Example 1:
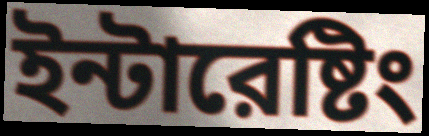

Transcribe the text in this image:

ইন্টারেষ্টিং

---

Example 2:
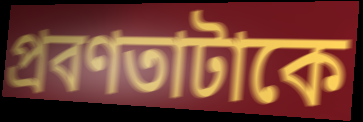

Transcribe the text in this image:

প্রবণতাটাকে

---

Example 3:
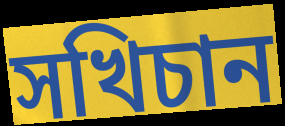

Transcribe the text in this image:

সখিচান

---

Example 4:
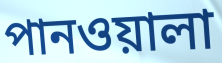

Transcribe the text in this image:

পানওয়ালা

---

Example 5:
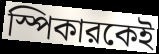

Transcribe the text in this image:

স্পিকারকেই